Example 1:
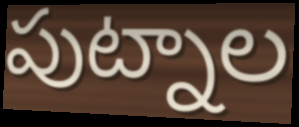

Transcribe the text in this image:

పుట్నాల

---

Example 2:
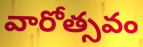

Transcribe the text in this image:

వారోత్సవం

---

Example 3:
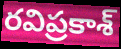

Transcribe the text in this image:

రవిప్రకాశ్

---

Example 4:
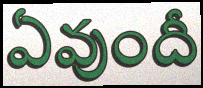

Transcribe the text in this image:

ఏవుందీ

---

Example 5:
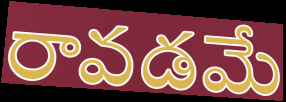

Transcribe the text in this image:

రావడమే